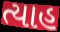
ત્યાહ